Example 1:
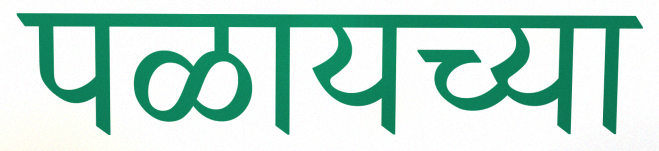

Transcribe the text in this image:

पळायच्या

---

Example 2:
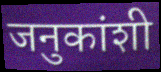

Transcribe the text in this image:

जनुकांशी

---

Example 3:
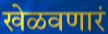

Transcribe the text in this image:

खेळवणारं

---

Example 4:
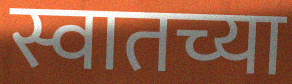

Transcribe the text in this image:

स्वातच्या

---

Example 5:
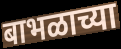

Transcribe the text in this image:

बाभळाच्या